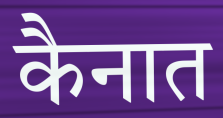
कैनात